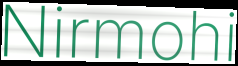
Nirmohi